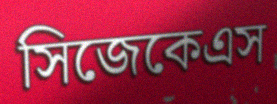
সিজেকেএস